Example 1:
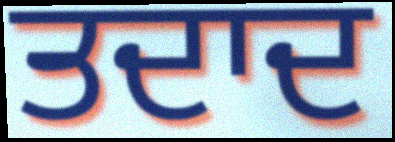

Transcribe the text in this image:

ਤਦਾਦ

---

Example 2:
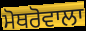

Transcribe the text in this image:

ਮੋਥਰੋਵਾਲਾ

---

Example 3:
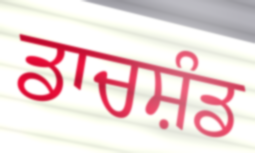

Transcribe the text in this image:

ਡਾਚਸ਼ੰਡ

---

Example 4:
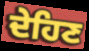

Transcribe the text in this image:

ਦੇਹਿਣ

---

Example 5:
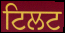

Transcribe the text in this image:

ਟਿਲਟ